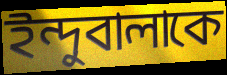
ইন্দুবালাকে